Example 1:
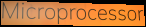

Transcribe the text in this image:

Microprocessor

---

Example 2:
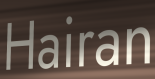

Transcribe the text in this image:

Hairan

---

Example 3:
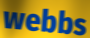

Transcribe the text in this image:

webbs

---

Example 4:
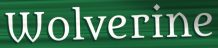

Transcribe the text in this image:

Wolverine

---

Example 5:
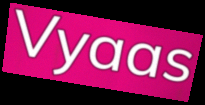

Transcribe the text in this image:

Vyaas